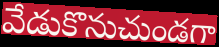
వేడుకొనుచుండగా